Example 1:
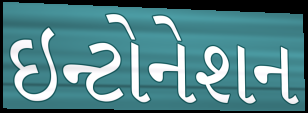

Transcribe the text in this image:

ઇન્ટોનેશન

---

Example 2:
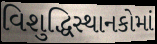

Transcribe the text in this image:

વિશુદ્ધિસ્થાનકોમાં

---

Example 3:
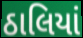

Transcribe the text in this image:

ઠાલિયાં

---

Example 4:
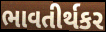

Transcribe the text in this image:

ભાવતીર્થકર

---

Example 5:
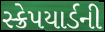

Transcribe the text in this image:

સ્ક્રેપયાર્ડની